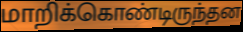
மாறிக்கொண்டிருந்தன